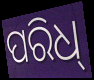
ପରିଧ୍